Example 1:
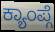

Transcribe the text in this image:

ಕ್ಯಾಂಪ್ಗೆ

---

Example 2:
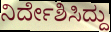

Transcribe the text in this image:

ನಿರ್ದೇಶಿಸಿದ್ದು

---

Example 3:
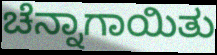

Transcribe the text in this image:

ಚೆನ್ನಾಗಾಯಿತು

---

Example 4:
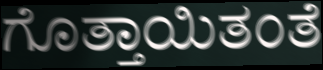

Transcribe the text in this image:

ಗೊತ್ತಾಯಿತಂತೆ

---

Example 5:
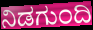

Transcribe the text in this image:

ನಿಡಗುಂದಿ